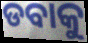
ଡବାକୁ